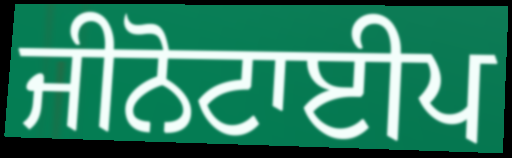
ਜੀਨੋਟਾਈਪ